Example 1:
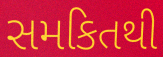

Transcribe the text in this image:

સમકિતથી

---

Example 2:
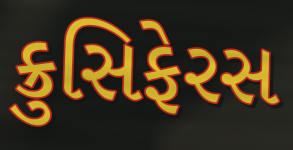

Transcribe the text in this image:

ક્રુસિફેરસ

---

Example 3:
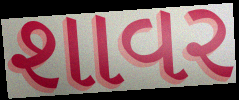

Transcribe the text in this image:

શાવર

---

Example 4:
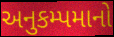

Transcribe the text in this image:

અનુકમ્પમાનો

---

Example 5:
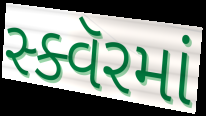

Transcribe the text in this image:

સ્ક્વૅરમાં